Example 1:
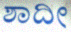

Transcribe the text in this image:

ಶಾದೀ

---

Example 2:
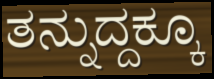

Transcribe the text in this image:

ತನ್ನುದ್ದಕ್ಕೂ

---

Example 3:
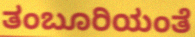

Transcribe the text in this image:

ತಂಬೂರಿಯಂತೆ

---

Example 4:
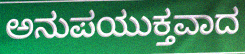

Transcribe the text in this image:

ಅನುಪಯುಕ್ತವಾದ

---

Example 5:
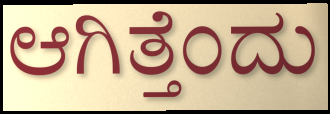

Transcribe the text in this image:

ಆಗಿತ್ತೆಂದು